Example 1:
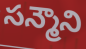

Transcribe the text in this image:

సన్మౌని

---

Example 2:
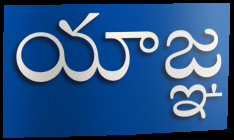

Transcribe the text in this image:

యాజ్ఞ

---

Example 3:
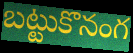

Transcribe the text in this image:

బట్టుకొనంగ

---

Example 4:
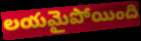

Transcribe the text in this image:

లయమైపోయింది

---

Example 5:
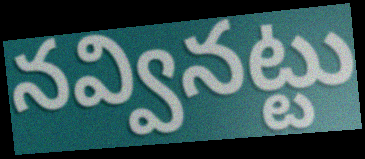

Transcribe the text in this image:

నవ్వినట్టు